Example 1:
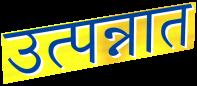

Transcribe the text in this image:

उत्पन्नात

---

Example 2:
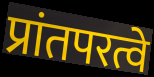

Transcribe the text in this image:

प्रांतपरत्वे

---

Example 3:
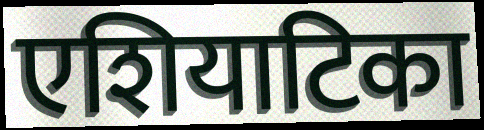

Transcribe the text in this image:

एशियाटिका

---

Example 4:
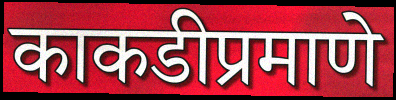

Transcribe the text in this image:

काकडीप्रमाणे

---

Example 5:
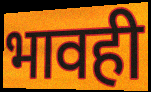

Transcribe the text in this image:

भावही